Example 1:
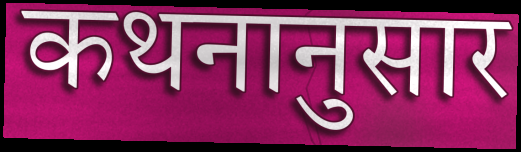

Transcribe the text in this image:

कथनानुसार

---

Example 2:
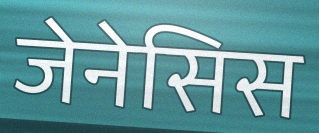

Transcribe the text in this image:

जेनेसिस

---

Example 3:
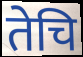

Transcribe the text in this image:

तेचि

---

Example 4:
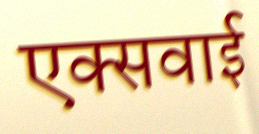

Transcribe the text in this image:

एक्सवाई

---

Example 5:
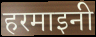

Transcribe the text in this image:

हरमाइनी